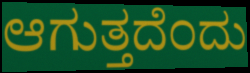
ಆಗುತ್ತದೆಂದು